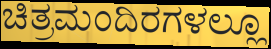
ಚಿತ್ರಮಂದಿರಗಳಲ್ಲೂ